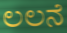
ಲಲನೆ